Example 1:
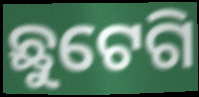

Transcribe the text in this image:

ଛୁଟେଗି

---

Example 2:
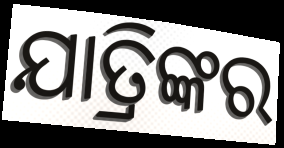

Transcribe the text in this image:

ଯାତ୍ରିଙ୍କର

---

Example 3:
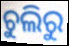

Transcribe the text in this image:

ଚୁଲିରୁ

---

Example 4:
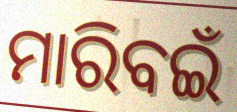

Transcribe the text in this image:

ମାରିବଇଁ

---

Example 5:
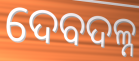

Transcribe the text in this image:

ଦେବଦଳ୍ନ